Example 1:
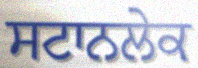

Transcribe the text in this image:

ਸਟਾਨਲੇਕ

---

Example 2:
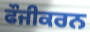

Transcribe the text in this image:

ਫੌਜੀਕਰਨ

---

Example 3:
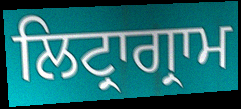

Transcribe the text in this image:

ਲਿਟ੍ਰਾਗ੍ਰਾਮ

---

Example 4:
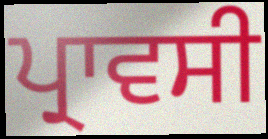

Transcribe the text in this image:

ਪ੍ਰਾਵਸੀ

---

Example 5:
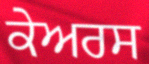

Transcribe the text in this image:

ਕੇਅਰਸ